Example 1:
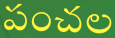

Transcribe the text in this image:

పంచల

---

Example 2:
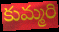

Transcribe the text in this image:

కుమ్మరి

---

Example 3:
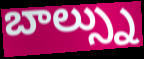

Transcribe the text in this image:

బాల్స్ను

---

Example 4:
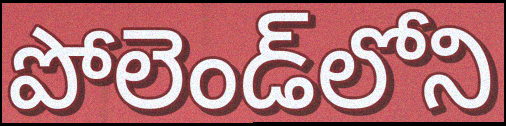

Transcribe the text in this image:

పోలెండ్‌లోని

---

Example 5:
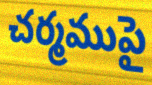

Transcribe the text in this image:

చర్మముపై